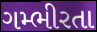
ગમ્ભીરતા